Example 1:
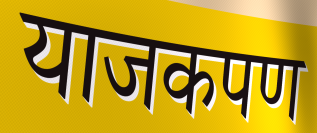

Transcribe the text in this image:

याजकपण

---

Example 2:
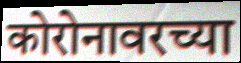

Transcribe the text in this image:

कोरोनावरच्या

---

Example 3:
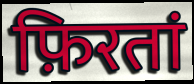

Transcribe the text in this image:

फ़िरतां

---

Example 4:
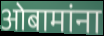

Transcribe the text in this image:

ओबामांना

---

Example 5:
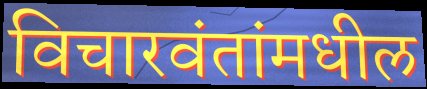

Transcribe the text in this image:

विचारवंतांमधील